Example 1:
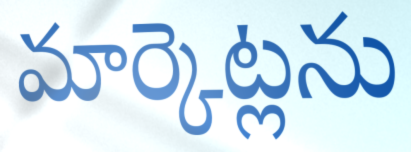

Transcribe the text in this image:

మార్కెట్లను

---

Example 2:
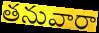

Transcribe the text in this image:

తనువారా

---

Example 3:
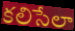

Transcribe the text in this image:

కలిసేలా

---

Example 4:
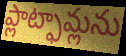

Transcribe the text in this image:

ప్లాట్ఫామ్లను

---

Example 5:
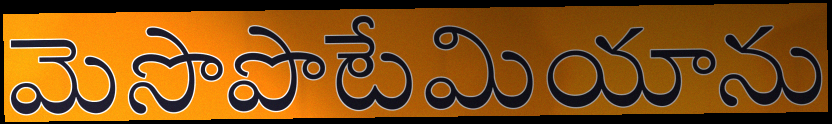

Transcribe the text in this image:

మెసొపొటేమియాను